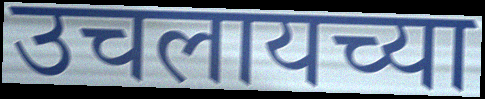
उचलायच्या